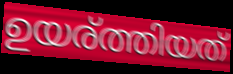
ഉയര്ത്തിയത്